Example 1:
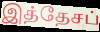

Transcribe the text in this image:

இத்தேசப்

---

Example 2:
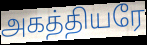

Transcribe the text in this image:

அகத்தியரே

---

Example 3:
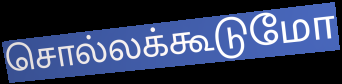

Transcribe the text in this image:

சொல்லக்கூடுமோ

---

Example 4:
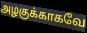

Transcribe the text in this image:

அழகுக்காகவே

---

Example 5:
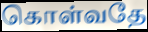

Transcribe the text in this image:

கொள்வதே